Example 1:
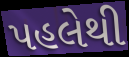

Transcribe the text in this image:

પહલેથી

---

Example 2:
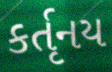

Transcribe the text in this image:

કર્તૃનય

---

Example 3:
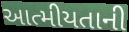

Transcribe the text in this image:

આત્મીયતાની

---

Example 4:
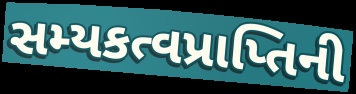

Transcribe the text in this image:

સમ્યકત્વપ્રાપ્તિની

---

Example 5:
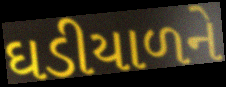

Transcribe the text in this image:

ઘડીયાળને